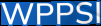
WPPSI